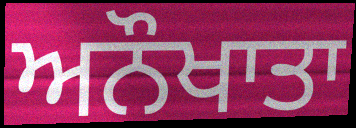
ਅਨੌਖਾਤਾ